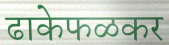
ढाकेफळकर